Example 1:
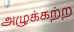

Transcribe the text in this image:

அழுக்கற்ற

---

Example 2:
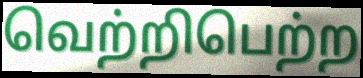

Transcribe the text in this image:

வெற்றிபெற்ற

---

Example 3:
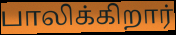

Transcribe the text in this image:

பாலிக்கிறார்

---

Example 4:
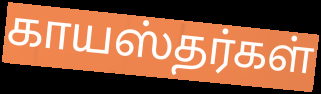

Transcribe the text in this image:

காயஸ்தர்கள்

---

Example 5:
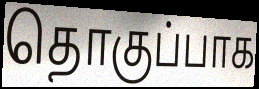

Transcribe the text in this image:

தொகுப்பாக